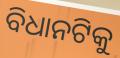
ବିଧାନଟିକୁ